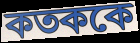
কতককে